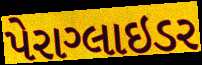
પેરાગ્લાઇડર